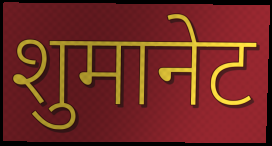
शुमानेट